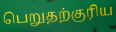
பெறுதற்குரிய